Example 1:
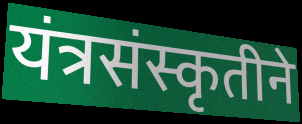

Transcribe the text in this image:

यंत्रसंस्कृतीने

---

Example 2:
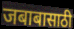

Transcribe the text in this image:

जबाबासाठी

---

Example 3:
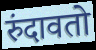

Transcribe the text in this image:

रुंदावतो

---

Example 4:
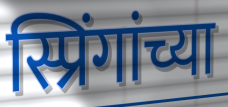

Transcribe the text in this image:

स्प्रिंगांच्या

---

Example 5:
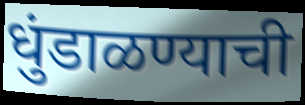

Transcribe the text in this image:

धुंडाळण्याची